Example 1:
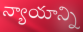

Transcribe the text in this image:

న్యాయాన్ని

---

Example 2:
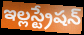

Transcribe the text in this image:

ఇల్లస్ట్రేషన్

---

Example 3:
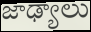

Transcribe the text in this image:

జాఢ్యాలు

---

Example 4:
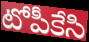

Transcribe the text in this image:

టోపీకేసి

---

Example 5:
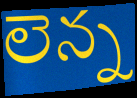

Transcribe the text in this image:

లెన్న